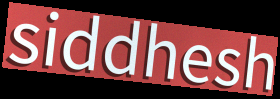
siddhesh